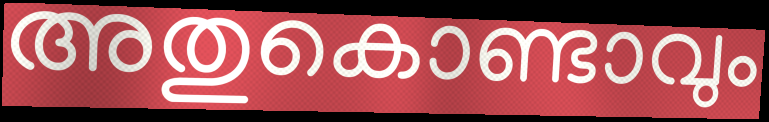
അതുകൊണ്ടാവും